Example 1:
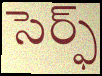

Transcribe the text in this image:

సెర్ఫ్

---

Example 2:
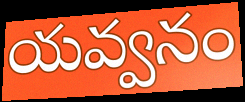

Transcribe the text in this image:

యవ్వనం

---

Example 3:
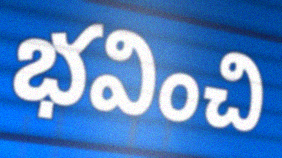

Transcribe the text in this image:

భవించి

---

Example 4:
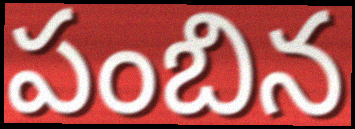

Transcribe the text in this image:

పంబిన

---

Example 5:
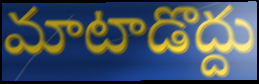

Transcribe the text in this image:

మాటాడొద్దు